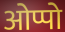
ओप्पो